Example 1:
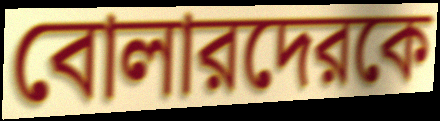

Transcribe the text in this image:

বোলারদেরকে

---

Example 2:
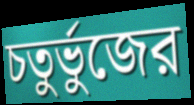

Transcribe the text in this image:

চতুর্ভুজের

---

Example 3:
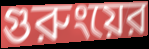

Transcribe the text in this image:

গুরুংয়ের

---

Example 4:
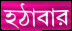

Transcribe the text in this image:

হঠাবার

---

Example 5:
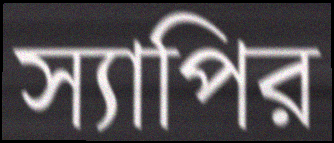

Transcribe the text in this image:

স্যাপির